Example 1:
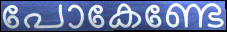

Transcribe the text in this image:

പോകേണ്ടേ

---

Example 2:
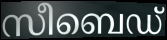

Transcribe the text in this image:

സീബെഡ്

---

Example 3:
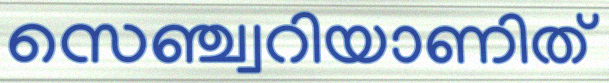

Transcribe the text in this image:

സെഞ്ച്വറിയാണിത്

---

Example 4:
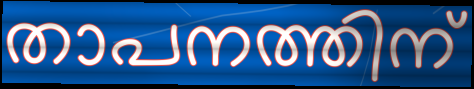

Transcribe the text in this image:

താപനത്തിന്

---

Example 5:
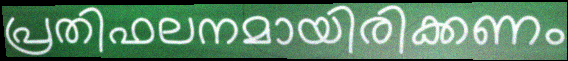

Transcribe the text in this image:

പ്രതിഫലനമായിരിക്കണം